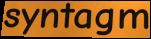
syntagm